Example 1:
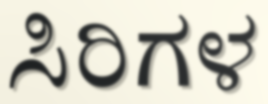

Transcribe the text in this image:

ಸಿರಿಗಳ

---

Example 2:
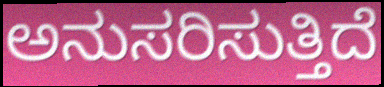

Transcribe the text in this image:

ಅನುಸರಿಸುತ್ತಿದೆ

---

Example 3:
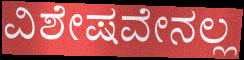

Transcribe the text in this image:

ವಿಶೇಷವೇನಲ್ಲ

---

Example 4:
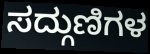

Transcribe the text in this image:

ಸದ್ಗುಣಿಗಳ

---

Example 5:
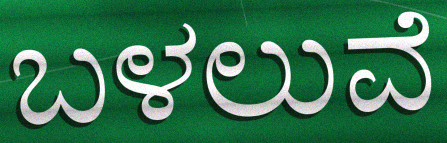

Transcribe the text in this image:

ಬಳಲುವೆ